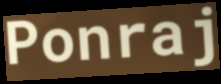
Ponraj